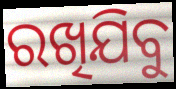
ରଖିଯିବୁ